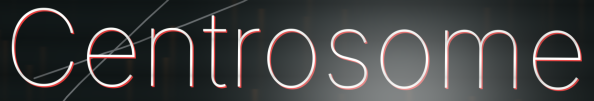
Centrosome